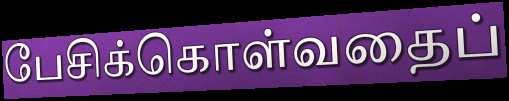
பேசிக்கொள்வதைப்